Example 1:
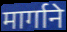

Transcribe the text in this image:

मार्गाने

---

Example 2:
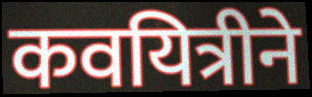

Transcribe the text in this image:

कवयित्रीने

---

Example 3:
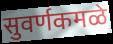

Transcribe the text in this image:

सुवर्णकमळे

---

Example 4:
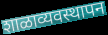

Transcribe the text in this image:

शाळाव्यवस्थापन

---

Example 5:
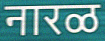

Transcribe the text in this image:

नारळ